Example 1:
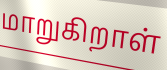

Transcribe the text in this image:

மாறுகிறாள்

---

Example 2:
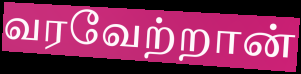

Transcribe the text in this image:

வரவேற்றான்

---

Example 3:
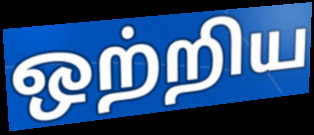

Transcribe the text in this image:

ஒற்றிய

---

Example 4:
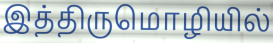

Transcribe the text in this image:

இத்திருமொழியில்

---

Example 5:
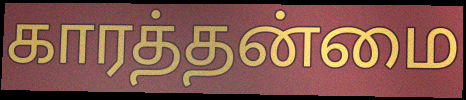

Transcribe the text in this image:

காரத்தன்மை